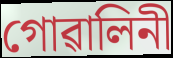
গোৱালিনী